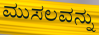
ಮುಸಲವನ್ನು